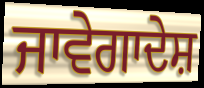
ਜਾਵੇਗਾਦੇਸ਼